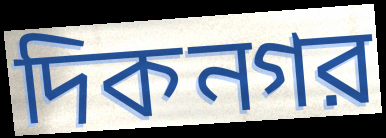
দিকনগর